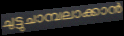
ചുട്ടുചാമ്പലാക്കാൻ